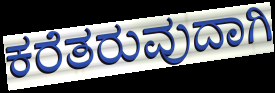
ಕರೆತರುವುದಾಗಿ